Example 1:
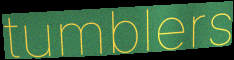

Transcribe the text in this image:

tumblers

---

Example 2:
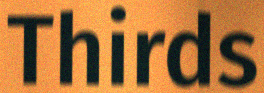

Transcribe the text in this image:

Thirds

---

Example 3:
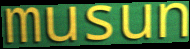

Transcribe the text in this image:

musun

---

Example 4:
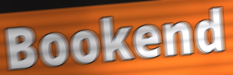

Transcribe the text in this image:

Bookend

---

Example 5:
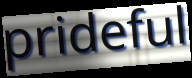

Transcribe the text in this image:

prideful